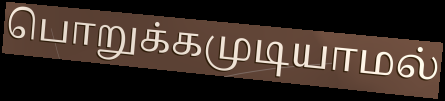
பொறுக்கமுடியாமல்